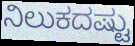
ನಿಲುಕದಷ್ಟು